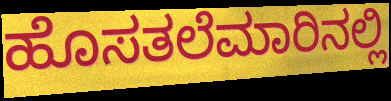
ಹೊಸತಲೆಮಾರಿನಲ್ಲಿ